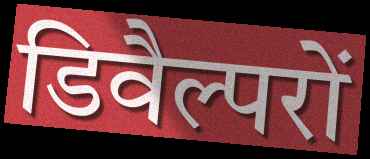
डिवैल्परों